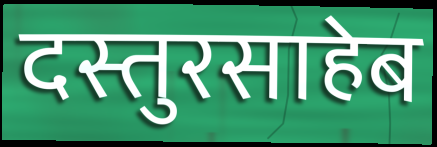
दस्तुरसाहेब